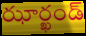
ఝార్ఖండ్